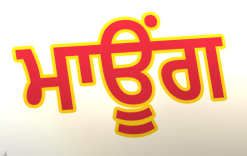
ਮਾਊਂਗ